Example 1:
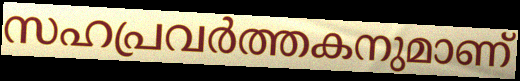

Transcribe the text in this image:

സഹപ്രവർത്തകനുമാണ്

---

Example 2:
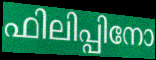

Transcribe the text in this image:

ഫിലിപ്പിനോ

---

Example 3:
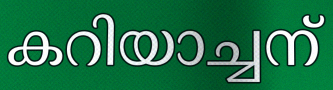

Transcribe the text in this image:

കറിയാച്ചന്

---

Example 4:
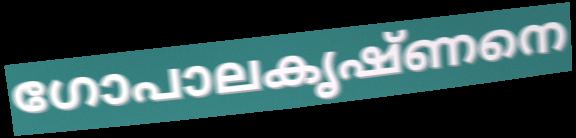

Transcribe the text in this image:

ഗോപാലകൃഷ്ണനെ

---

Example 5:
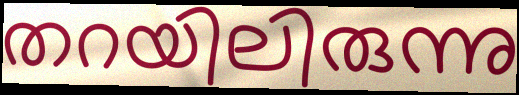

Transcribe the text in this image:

തറയിലിരുന്നു